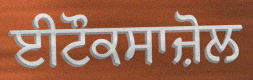
ਈਟੌਕਸਾਜ਼ੋਲ